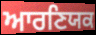
ਆਰਣਿਯਕ